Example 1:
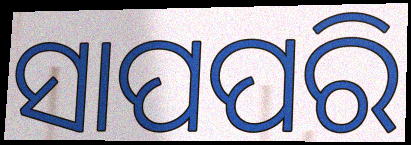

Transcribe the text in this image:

ସାପପରି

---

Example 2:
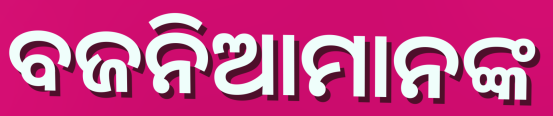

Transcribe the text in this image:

ବଜନିଆମାନଙ୍କ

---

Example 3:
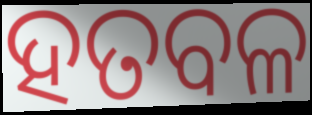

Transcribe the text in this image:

ହତବଳ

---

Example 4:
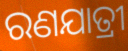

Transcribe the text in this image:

ରଣଯାତ୍ରୀ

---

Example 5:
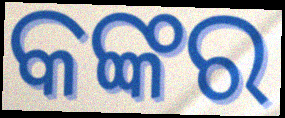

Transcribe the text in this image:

କଙ୍କର